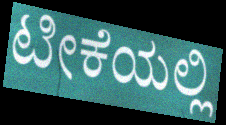
ಟೀಕೆಯಲ್ಲಿ